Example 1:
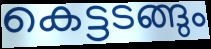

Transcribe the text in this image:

കെട്ടടങ്ങും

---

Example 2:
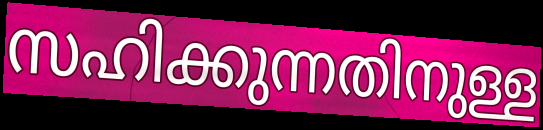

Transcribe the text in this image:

സഹിക്കുന്നതിനുള്ള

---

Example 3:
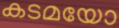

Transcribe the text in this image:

കടമയോ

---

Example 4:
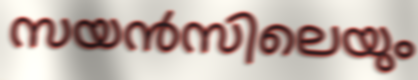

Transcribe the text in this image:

സയൻസിലെയും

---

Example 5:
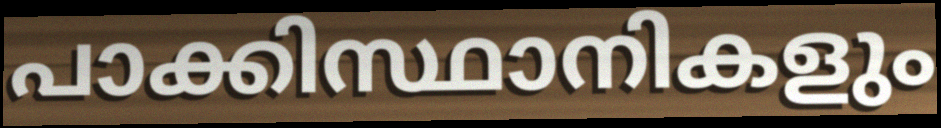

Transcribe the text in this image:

പാക്കിസ്ഥാനികളും